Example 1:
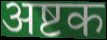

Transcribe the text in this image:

अष्टक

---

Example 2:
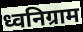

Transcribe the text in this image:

ध्वनिग्राम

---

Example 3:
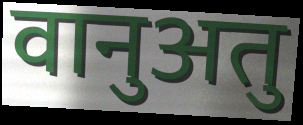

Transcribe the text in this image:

वानुअतु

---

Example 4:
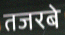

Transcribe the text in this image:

तजरबे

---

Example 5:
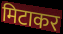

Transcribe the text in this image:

मिटाकर